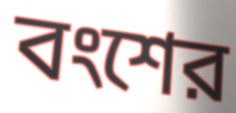
বংশের